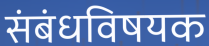
संबंधविषयक